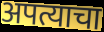
अपत्याचा